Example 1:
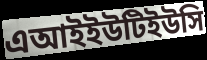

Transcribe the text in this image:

এআইইউটিইউসি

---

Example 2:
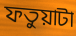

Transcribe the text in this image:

ফতুয়াটা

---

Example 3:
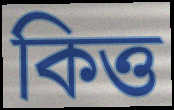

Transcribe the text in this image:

কিত্ত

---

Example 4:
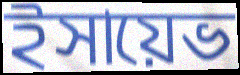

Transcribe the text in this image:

ইসায়েভ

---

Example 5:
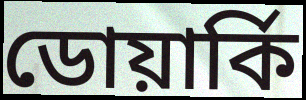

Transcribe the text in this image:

ডোয়ার্কি